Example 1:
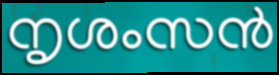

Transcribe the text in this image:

നൃശംസൻ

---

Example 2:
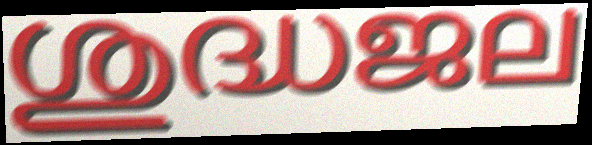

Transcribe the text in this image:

ശുദ്ധജല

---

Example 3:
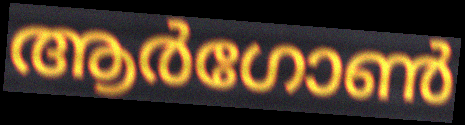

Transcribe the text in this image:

ആർഗോൺ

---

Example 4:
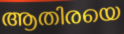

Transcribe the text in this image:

ആതിരയെ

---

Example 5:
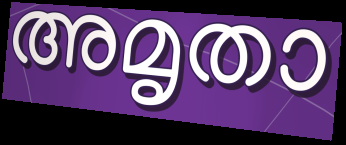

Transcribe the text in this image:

അമൃതാ